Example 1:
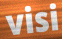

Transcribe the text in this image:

visi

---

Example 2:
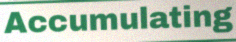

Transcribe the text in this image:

Accumulating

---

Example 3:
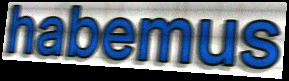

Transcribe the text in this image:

habemus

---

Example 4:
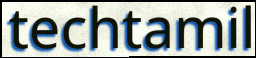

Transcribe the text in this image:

techtamil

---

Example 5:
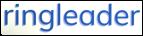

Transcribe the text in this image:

ringleader